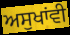
ਅਸੁਖਾਂਵੀ